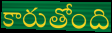
కారుతోంది